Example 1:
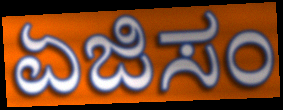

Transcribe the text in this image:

ಏಜಿಸಂ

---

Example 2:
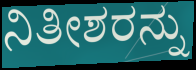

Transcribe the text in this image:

ನಿತೀಶರನ್ನು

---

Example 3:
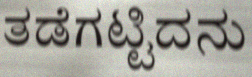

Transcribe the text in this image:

ತಡೆಗಟ್ಟಿದನು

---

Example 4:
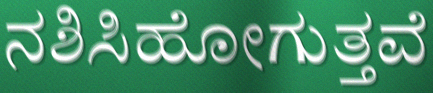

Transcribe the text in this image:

ನಶಿಸಿಹೋಗುತ್ತವೆ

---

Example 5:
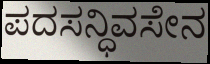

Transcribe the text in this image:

ಪದಸನ್ಧಿವಸೇನ